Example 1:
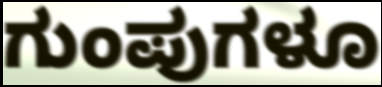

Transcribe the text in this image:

ಗುಂಪುಗಳೂ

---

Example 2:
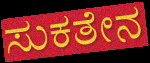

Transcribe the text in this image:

ಸುಕತೇನ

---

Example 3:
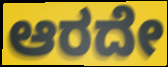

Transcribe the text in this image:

ಆರದೇ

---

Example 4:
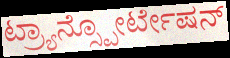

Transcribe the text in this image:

ಟ್ರ್ಯಾನ್ಸ್ಪೋರ್ಟೇಷನ್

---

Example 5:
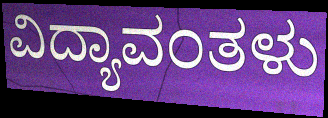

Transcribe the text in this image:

ವಿದ್ಯಾವಂತಳು